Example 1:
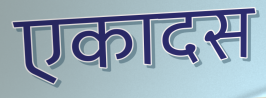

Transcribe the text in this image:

एकादस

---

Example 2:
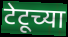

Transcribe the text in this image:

टेटूच्या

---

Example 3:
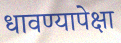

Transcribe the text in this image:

धावण्यापेक्षा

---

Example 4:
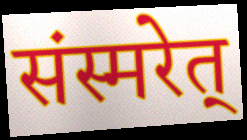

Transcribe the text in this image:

संस्मरेत्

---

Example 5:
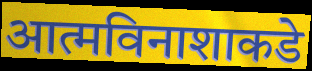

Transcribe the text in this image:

आत्मविनाशाकडे